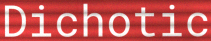
Dichotic